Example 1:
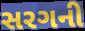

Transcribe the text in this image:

સરગની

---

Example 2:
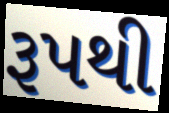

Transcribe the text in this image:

રૂપથી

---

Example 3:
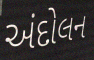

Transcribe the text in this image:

અંદોલન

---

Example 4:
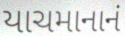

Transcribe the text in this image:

યાચમાનાનં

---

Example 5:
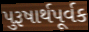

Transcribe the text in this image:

પુરૂષાર્થપૂર્વક